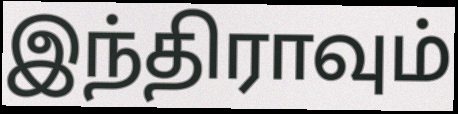
இந்திராவும்